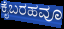
ಕೈಬರಹವೂ